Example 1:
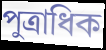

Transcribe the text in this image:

পুত্রাধিক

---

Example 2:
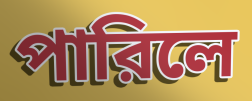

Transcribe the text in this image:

পারিলে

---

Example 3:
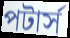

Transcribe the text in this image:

পটার্স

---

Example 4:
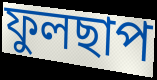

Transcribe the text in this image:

ফুলছাপ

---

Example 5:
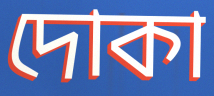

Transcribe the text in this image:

দোকা